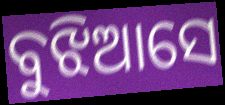
ବୁଝିଆସେ